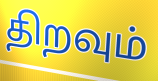
திறவும்